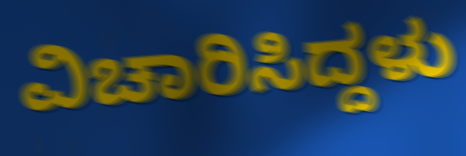
ವಿಚಾರಿಸಿದ್ದಳು